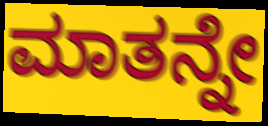
ಮಾತನ್ನೇ